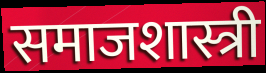
समाजशास्त्री